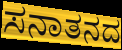
ಸನಾತನದ